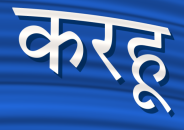
करहू